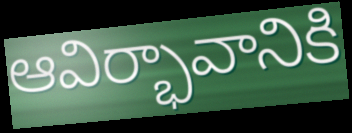
ఆవిర్భావానికి